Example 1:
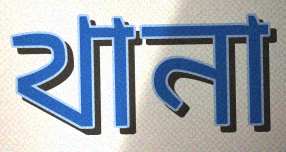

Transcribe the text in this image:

থানা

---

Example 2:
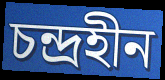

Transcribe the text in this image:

চন্দ্রহীন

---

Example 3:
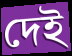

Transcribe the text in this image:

দেই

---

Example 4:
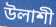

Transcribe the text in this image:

উলাশী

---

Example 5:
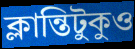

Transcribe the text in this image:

ক্লান্তিটুকুও